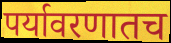
पर्यावरणातच